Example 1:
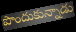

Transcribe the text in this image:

పొందుకున్నాడు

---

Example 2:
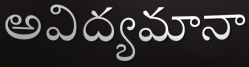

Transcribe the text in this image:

అవిద్యమానా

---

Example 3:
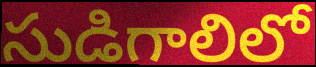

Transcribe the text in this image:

సుడిగాలిలో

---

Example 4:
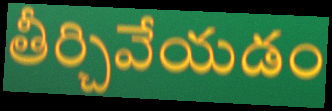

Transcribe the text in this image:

తీర్చివేయడం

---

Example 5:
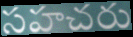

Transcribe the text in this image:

సహచరు